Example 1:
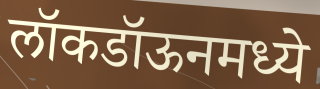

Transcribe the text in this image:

लॉकडॉऊनमध्ये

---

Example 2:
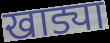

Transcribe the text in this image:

खाड्या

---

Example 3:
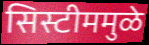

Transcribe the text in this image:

सिस्टीममुळे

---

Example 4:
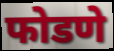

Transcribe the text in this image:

फोडणे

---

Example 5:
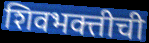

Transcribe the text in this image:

शिवभक्तीची